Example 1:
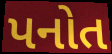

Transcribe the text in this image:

પનોત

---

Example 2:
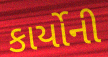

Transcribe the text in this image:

કાર્યોની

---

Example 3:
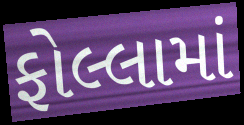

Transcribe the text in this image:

ફોલ્લામાં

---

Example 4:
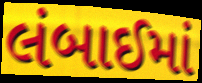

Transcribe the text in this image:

લંબાઈમાં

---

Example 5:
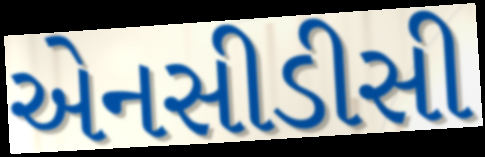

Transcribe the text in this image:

એનસીડીસી